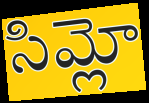
సిమ్లో